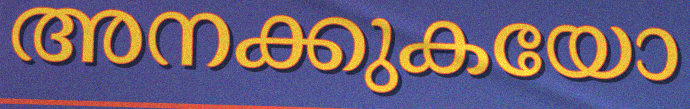
അനക്കുകയോ